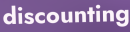
discounting